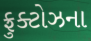
ફ્રુક્ટોઝના